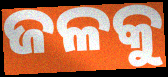
ଜଳକୁ